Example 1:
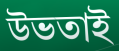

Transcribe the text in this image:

উভতাই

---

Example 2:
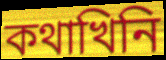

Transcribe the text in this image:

কথাখিনি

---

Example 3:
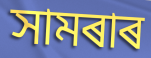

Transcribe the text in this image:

সামৰাৰ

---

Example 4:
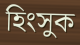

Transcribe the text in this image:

হিংসুক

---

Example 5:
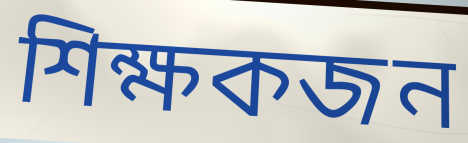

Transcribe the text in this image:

শিক্ষকজন